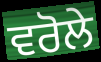
ਵਰੋਲੇ